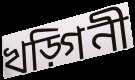
খড়্গিনী